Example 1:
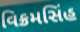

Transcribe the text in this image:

વિક્રમસિંહ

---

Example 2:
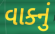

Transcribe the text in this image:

વાક્નું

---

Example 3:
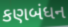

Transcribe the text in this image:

કણબંધન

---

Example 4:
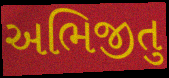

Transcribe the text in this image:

અભિજીતુ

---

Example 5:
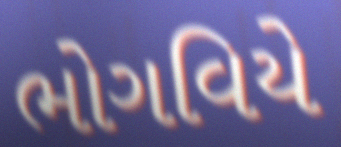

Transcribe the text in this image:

ભોગવિયે